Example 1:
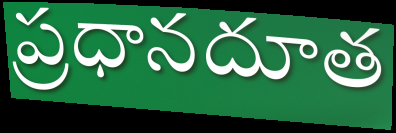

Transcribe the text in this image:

ప్రధానదూత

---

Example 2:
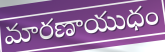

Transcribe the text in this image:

మారణాయుధం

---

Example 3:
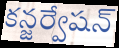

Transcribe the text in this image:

కన్జర్వేషన్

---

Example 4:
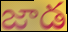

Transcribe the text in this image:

జాడ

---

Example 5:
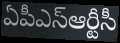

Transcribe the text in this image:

ఏపీఎస్ఆర్టీసీ